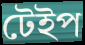
টেইপ